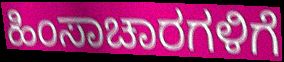
ಹಿಂಸಾಚಾರಗಳಿಗೆ